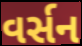
વર્સન